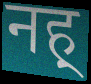
नह्